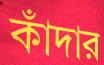
কাঁদার